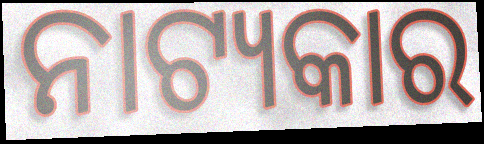
ନାଟ୍ଯକାର